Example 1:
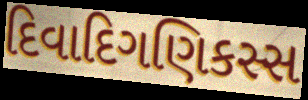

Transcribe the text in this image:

દિવાદિગણિકસ્સ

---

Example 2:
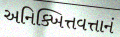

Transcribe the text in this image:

અનિક્ખિત્તવત્તાનં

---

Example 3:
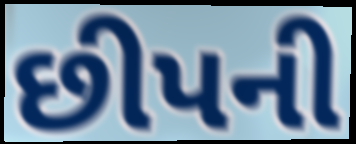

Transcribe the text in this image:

છીપની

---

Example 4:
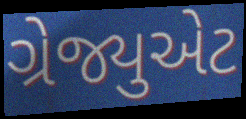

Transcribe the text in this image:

ગ્રેજ્યુએટ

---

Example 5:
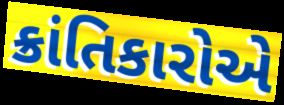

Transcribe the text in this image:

ક્રાંતિકારોએ